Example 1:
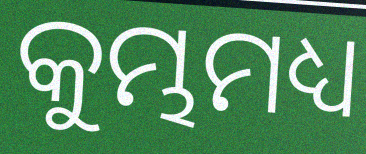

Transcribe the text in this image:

କୁମ୍ଭମଧ୍ୟ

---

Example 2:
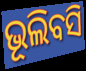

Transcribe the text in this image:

ଭୂଲିବସି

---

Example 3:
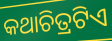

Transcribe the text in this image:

କଥାଚିତ୍ରଟିଏ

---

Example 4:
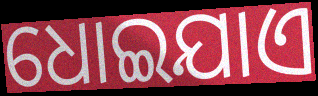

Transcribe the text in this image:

ଧୋଇଯାଏ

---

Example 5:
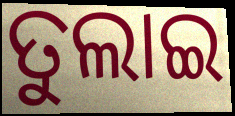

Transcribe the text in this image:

ତୁଲାଇ